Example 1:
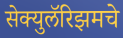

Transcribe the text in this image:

सेक्युलॅरिझमचे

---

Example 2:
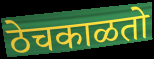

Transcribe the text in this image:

ठेचकाळतो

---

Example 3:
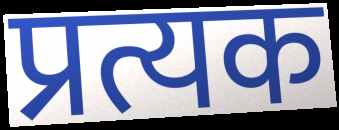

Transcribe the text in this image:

प्रत्यक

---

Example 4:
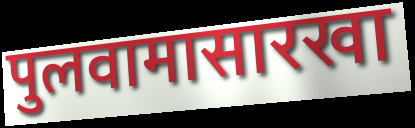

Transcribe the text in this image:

पुलवामासारखा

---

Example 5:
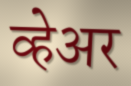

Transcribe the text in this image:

व्हेअर